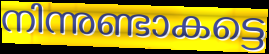
നിന്നുണ്ടാകട്ടെ